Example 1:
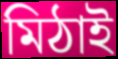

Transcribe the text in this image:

মিঠাই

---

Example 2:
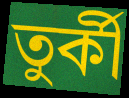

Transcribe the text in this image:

তুৰ্কী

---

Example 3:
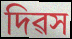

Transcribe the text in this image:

দিৱস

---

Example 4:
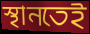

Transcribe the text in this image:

স্থানতেই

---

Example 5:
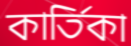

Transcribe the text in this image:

কাৰ্তিকা